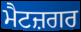
ਮੈਟਜ਼ਗਰ